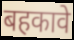
बहकावे